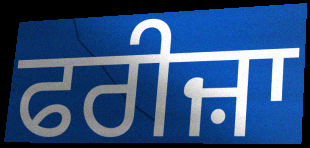
ਫਰੀਜ਼ਾ